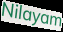
Nilayam